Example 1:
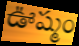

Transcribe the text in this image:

ఊష్మం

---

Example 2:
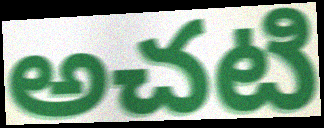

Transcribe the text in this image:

అచటి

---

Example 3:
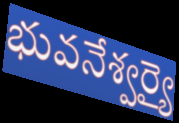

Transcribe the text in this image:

భువనేశ్వర్యై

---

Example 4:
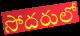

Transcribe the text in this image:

సోదరులో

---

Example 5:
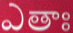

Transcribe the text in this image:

ఎతాః